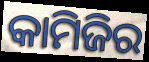
କାମିଜିର